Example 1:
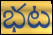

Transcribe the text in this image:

భట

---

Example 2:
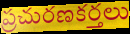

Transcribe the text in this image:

ప్రచురణకర్తలు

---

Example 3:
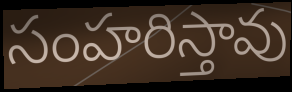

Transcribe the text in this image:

సంహరిస్తావు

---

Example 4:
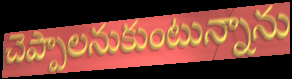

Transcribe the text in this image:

చెప్పాలనుకుంటున్నాను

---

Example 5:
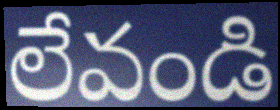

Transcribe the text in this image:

లేవండి